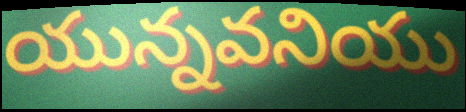
యున్నవనియు